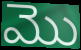
మొ